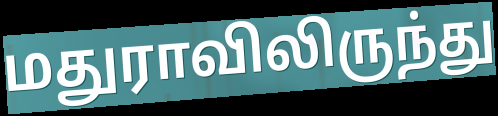
மதுராவிலிருந்து